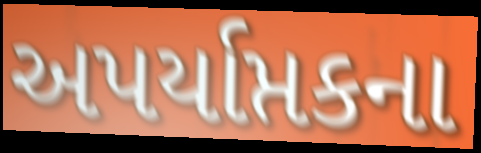
અપર્યાપ્તકના